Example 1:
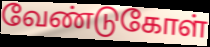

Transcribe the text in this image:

வேண்டுகோள்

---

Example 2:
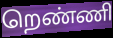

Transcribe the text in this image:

றெண்ணி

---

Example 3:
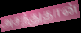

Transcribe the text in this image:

அசந்துதான்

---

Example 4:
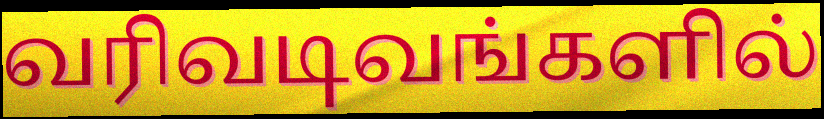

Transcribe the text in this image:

வரிவடிவங்களில்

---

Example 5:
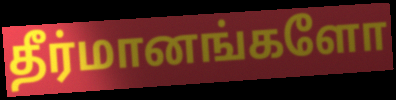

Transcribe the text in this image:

தீர்மானங்களோ